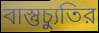
বাস্তুচ্যুতির